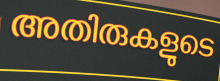
അതിരുകളുടെ